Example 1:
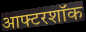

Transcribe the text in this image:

आफ्टरशॉक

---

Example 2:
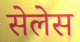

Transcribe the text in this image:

सेलेस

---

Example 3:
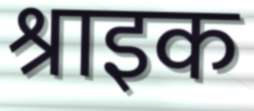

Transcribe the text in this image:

श्राइक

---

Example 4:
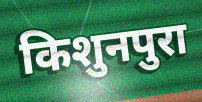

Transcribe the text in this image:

किशुनपुरा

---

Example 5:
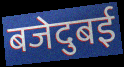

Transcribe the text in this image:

बजेदुबई